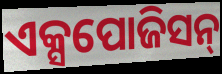
ଏକ୍ସପୋଜିସନ୍